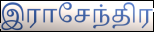
இராசேந்திர